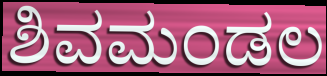
ಶಿವಮಂಡಲ